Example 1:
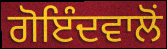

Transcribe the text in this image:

ਗੋਇੰਦਵਾਲੋਂ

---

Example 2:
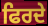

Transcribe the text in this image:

ਫਿਰਦੇ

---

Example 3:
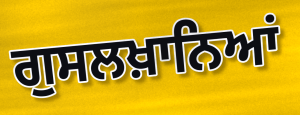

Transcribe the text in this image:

ਗੁਸਲਖ਼ਾਨਿਆਂ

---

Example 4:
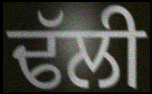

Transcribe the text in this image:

ਢੱਲੀ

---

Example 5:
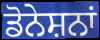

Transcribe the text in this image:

ਡੋਨੇਸ਼ਨਾਂ